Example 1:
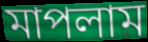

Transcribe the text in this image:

মাপলাম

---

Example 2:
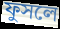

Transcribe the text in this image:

ফুসলে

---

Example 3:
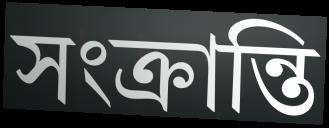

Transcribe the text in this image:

সংক্রান্তি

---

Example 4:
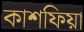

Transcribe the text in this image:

কাশফিয়া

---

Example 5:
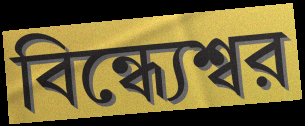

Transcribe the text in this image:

বিন্ধ্যেশ্বর